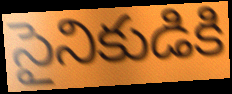
సైనికుడికి